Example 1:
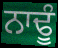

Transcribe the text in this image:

ਨਾਢੂੰ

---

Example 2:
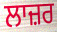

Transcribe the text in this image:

ਲਾਜ਼ਰ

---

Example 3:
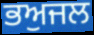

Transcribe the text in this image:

ਭਅੁਜਲ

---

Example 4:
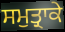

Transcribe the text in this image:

ਸਮੁਤ੍ਰਾਕੇ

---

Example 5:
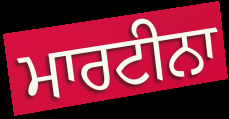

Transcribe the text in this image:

ਮਾਰਟੀਨਾ